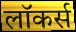
लॉकर्स